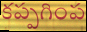
కప్పగింప